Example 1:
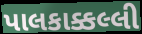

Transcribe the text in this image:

પાલકાક્કલ્લી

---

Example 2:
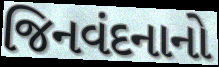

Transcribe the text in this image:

જિનવંદનાનો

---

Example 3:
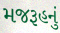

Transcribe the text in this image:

મજરૂહનું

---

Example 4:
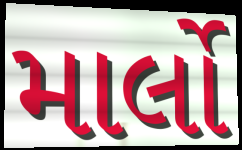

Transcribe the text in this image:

માર્લો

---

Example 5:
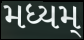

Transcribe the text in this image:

મધ્યમ્